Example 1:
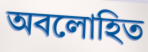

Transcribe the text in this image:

অবলোহিত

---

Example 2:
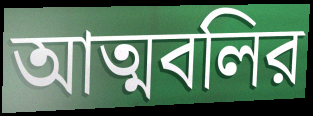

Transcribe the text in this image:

আত্মবলির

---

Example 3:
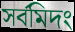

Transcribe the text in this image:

সর্বমিদং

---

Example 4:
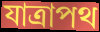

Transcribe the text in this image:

যাত্রাপথ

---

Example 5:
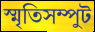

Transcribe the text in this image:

স্মৃতিসম্পুট